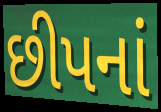
છીપનાં